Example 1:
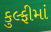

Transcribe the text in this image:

કુલ્ફીમાં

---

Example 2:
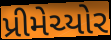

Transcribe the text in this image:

પ્રીમેચ્યોર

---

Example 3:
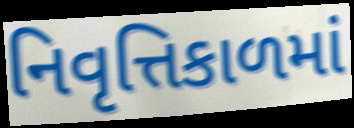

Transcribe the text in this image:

નિવૃત્તિકાળમાં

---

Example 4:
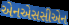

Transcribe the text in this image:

એનએસસીએન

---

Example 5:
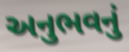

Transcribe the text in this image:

અનુભવનું